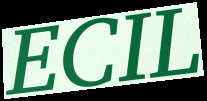
ECIL